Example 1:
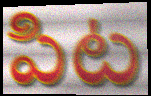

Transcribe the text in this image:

పిట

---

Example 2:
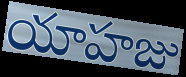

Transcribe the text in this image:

యాహజు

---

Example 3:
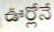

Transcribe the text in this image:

ఊర్లోనే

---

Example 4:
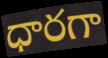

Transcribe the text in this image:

ధారగా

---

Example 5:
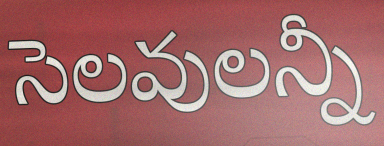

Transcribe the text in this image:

సెలవులన్నీ